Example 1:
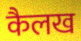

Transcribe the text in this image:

कैलख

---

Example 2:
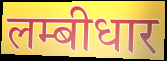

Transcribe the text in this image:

लम्बीधार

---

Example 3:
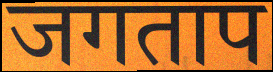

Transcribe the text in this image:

जगताप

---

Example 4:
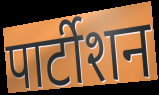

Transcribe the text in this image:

पार्टीशन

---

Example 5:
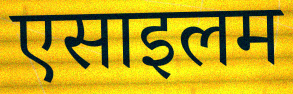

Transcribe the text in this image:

एसाइलम